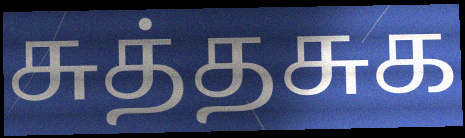
சுத்தசுக